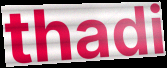
thadi